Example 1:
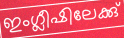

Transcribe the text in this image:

ഇംഗ്ലീഷിലേക്കു്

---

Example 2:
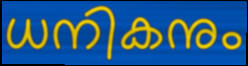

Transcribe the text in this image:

ധനികനും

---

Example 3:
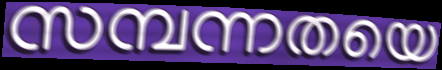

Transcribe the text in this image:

സമ്പന്നതയെ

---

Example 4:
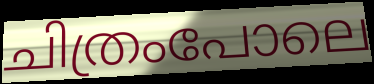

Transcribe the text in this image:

ചിത്രംപോലെ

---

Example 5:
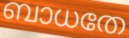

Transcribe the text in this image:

ബാധതേ